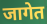
जागेत